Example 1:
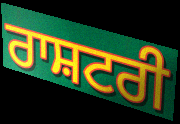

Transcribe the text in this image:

ਰਾਸ਼ਟਰੀ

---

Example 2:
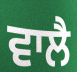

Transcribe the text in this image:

ਵਾਲੈ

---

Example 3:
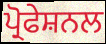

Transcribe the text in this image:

ਪ੍ਰੋਫੇਸ਼ਨਲ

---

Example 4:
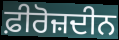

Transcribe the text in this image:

ਫ਼ੀਰੋਜ਼ਦੀਨ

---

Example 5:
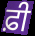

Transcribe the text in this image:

ਫ਼ੀ